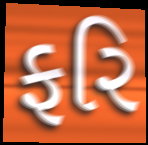
ફરિ